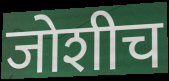
जोशीच